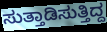
ಸುತ್ತಾಡಿಸುತ್ತಿದ್ದ